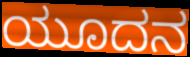
ಯೂದನ